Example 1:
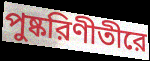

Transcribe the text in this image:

পুষ্করিণীতীরে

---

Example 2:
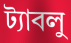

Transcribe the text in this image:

ট্যাবলু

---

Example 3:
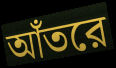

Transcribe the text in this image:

আঁতরে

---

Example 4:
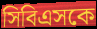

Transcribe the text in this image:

সিবিএসকে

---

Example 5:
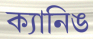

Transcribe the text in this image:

ক্যানিঙ